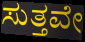
ಸುತ್ತವೇ